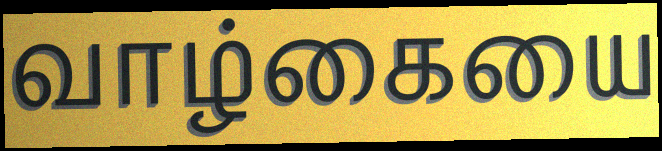
வாழ்கையை